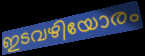
ഇടവഴിയോരം